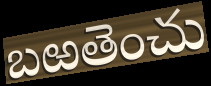
బఱతెంచు